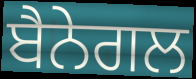
ਬੈਨੇਗਲ